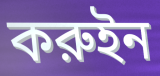
করুইন